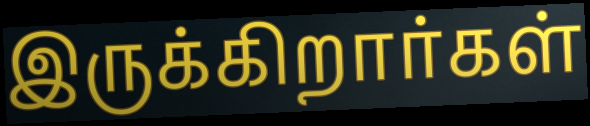
இருக்கிறார்கள்